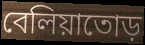
বেলিয়াতোড়